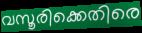
വസൂരിക്കെതിരെ